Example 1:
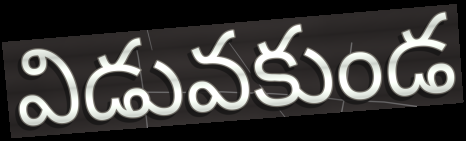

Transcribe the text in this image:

విడువకుండ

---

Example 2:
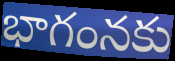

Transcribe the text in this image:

భాగంనకు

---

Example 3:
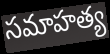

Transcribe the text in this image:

సమాహత్య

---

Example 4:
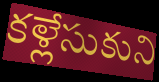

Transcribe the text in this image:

కళ్లేసుకుని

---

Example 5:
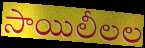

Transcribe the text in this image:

సాయిలీలల